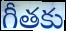
గీతకు